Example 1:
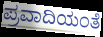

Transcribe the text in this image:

ಪ್ರವಾದಿಯಂತೆ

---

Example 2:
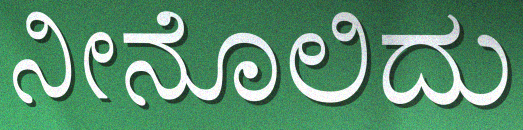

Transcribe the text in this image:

ನೀನೊಲಿದು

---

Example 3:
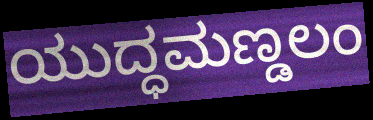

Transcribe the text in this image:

ಯುದ್ಧಮಣ್ಡಲಂ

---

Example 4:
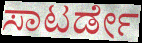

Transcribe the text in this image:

ಸಾಟರ್ಡೇ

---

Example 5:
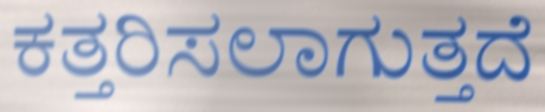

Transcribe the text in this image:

ಕತ್ತರಿಸಲಾಗುತ್ತದೆ